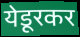
येडूरकर